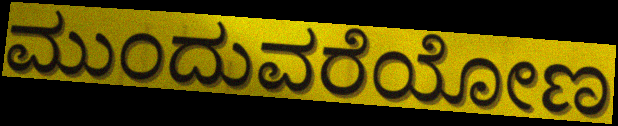
ಮುಂದುವರೆಯೋಣ